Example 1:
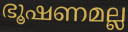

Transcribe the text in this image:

ഭൂഷണമല്ല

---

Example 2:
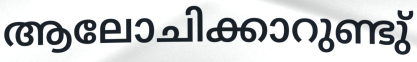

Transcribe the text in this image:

ആലോചിക്കാറുണ്ടു്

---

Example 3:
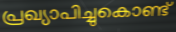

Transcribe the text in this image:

പ്രഖ്യാപിച്ചുകൊണ്ട്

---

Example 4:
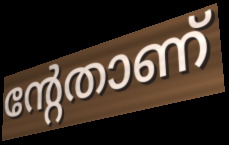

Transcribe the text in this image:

ന്റേതാണ്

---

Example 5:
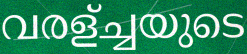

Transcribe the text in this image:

വരള്ച്ചയുടെ